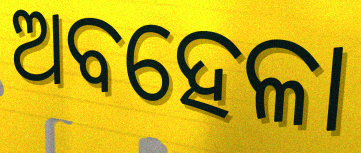
ଅବହେଳା